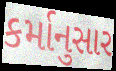
કર્માનુસાર